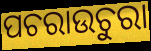
ପଚରାଉଚୁରା